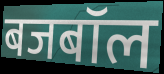
बजबॉल